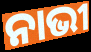
ନାଭୀ